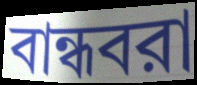
বান্ধবরা